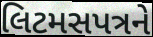
લિટમસપત્રને